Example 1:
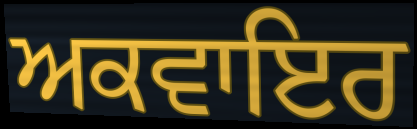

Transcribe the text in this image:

ਅਕਵਾਇਰ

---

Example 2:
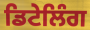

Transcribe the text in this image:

ਡਿਟੇਲਿੰਗ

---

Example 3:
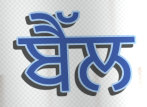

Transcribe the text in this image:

ਬੈੱਲ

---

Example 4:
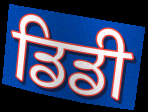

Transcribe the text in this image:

ਡਿਡੀ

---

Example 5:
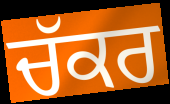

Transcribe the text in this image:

ਚੱਕਰ